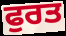
ਫੁਰਤ